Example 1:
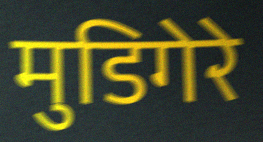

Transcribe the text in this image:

मुडिगेरे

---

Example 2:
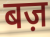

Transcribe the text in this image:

बज़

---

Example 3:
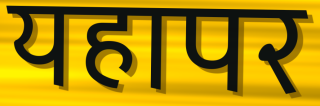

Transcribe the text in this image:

यहापर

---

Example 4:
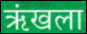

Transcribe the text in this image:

ऋंखला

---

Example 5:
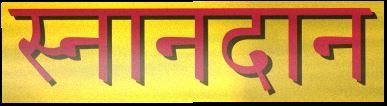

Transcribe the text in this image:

स्नानदान